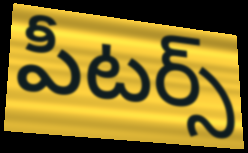
పీటర్స్